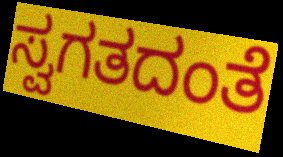
ಸ್ವಗತದಂತೆ